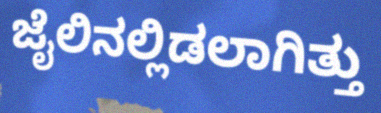
ಜೈಲಿನಲ್ಲಿಡಲಾಗಿತ್ತು